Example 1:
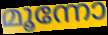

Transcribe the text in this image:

മൂന്നോ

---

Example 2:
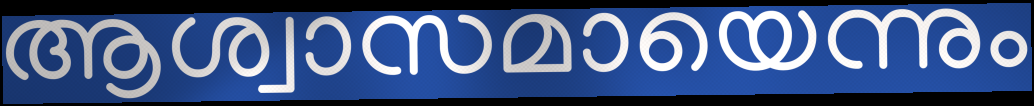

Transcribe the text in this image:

ആശ്വാസമായെന്നും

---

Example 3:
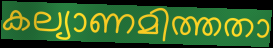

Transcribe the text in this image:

കല്യാണമിത്തതാ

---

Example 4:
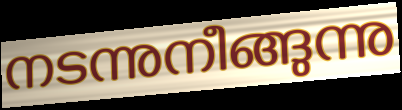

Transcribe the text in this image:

നടന്നുനീങ്ങുന്നു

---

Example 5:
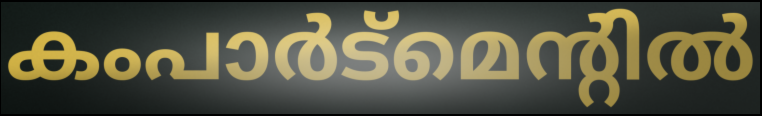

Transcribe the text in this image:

കംപാർട്മെന്റിൽ